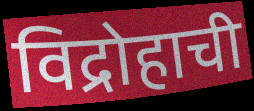
विद्रोहाची